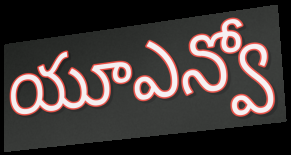
యూఎన్వో